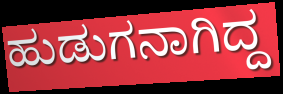
ಹುಡುಗನಾಗಿದ್ದ